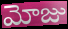
మోజు